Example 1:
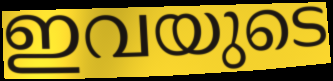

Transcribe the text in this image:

ഇവയുടെ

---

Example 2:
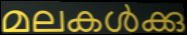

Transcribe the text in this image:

മലകൾക്കു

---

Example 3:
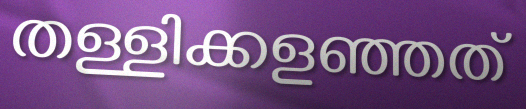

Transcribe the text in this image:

തള്ളിക്കളഞ്ഞത്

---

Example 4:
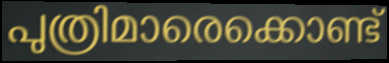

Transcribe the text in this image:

പുത്രിമാരെക്കൊണ്ട്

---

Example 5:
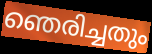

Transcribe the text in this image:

ഞെരിച്ചതും